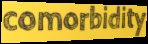
comorbidity